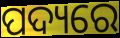
ପଦ୍ୟରେ